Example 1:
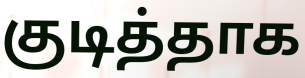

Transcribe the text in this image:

குடித்தாக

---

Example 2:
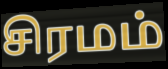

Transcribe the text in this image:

சிரமம்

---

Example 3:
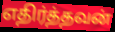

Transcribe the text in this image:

எதிர்த்தவன்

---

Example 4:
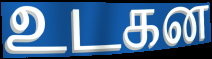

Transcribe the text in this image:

உடகன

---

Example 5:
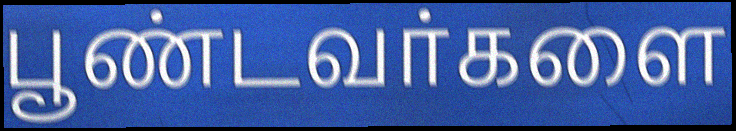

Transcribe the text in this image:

பூண்டவர்களை